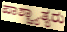
ಪಾಶ್ಚ್ಯಾತ್ಯರು